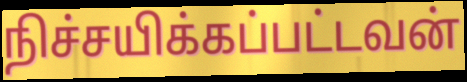
நிச்சயிக்கப்பட்டவன்